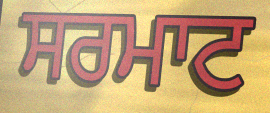
ਸਰਮਾਟ